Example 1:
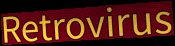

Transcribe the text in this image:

Retrovirus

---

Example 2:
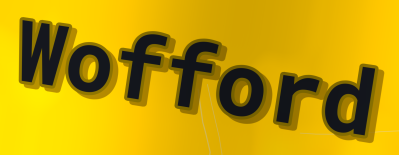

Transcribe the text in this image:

Wofford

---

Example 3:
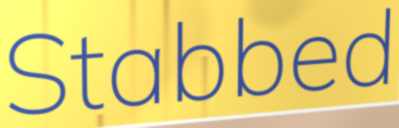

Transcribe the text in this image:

Stabbed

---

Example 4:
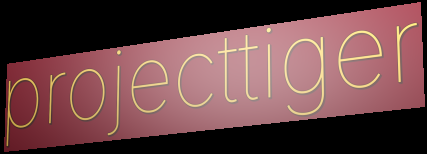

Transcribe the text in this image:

projecttiger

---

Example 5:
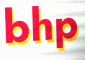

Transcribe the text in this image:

bhp